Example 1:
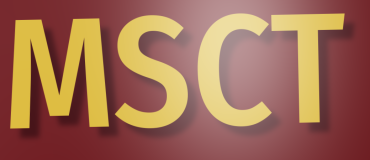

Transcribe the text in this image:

MSCT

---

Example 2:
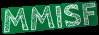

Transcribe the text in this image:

MMISF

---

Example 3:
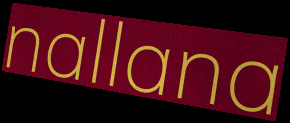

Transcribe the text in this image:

nallana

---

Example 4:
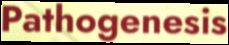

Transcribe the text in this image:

Pathogenesis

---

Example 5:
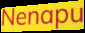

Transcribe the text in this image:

Nenapu